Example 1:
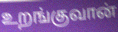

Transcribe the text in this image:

உறங்குவான்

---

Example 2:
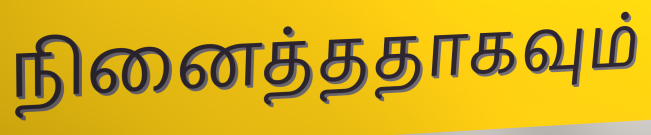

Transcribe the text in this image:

நினைத்ததாகவும்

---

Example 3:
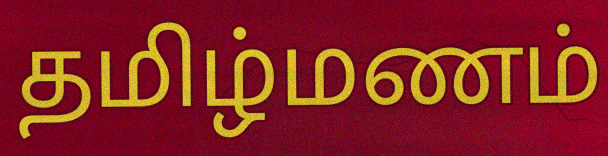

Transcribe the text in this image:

தமிழ்மணம்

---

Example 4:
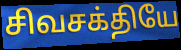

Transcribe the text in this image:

சிவசக்தியே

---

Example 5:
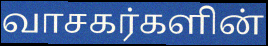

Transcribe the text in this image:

வாசகர்களின்